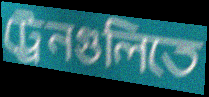
ট্রেনগুলিতে